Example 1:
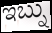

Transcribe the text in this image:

ಇಬ್ನು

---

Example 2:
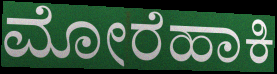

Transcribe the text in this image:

ಮೋರೆಹಾಕಿ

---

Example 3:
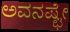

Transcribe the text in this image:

ಅವನಷ್ಟೇ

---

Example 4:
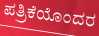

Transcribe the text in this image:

ಪತ್ರಿಕೆಯೊಂದರ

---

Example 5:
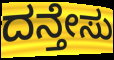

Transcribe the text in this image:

ದನ್ತೇಸು